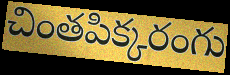
చింతపిక్కరంగు